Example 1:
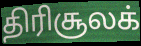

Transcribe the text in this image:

திரிசூலக்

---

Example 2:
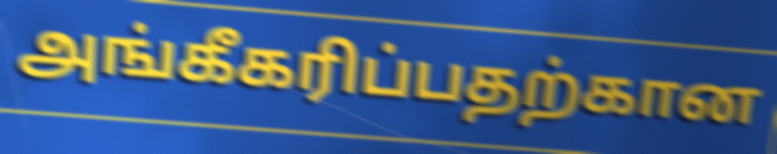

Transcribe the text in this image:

அங்கீகரிப்பதற்கான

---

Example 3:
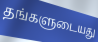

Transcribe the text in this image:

தங்களுடையது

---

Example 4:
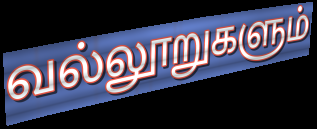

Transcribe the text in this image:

வல்லூறுகளும்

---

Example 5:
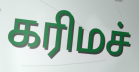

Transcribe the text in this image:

கரிமச்